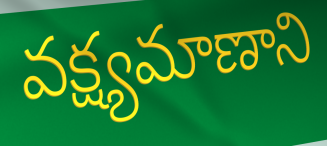
వక్ష్యమాణాని